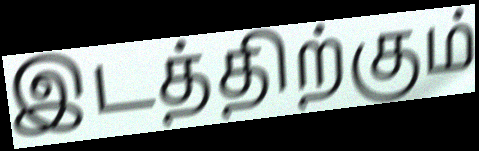
இடத்திற்கும்